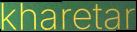
kharetar